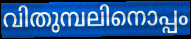
വിതുമ്പലിനൊപ്പം